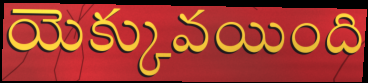
యెక్కువయింది